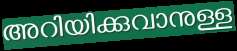
അറിയിക്കുവാനുള്ള